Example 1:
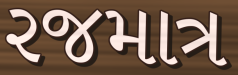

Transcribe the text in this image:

રજમાત્ર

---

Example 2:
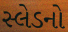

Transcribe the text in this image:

સ્લેડનો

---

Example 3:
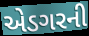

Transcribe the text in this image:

એડગરની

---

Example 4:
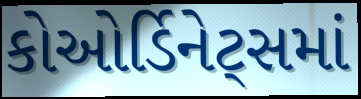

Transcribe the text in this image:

કોઓર્ડિનેટ્સમાં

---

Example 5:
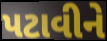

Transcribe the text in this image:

પટાવીને